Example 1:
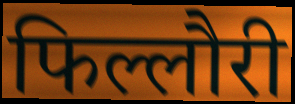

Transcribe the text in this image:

फिल्लौरी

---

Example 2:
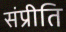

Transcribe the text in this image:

संप्रीति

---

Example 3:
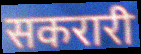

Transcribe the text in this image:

सकरारी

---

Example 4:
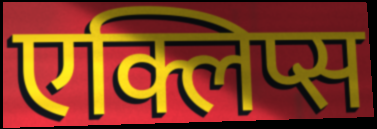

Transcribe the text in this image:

एक्लिप्स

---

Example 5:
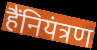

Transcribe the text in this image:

हैंनियंत्रण